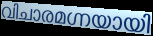
വിചാരമഗ്നയായി